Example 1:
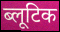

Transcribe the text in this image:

ब्लूटिक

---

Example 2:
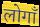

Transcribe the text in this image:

लोगाँ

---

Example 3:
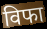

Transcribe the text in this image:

विफा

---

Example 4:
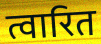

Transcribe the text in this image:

त्वारित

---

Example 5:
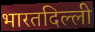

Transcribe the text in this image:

भारतदिल्ली